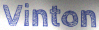
Vinton